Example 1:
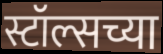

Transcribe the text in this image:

स्टॉल्सच्या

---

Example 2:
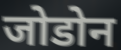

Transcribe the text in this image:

जोडोन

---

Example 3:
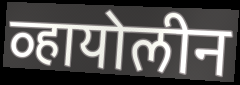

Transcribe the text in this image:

व्हायोलीन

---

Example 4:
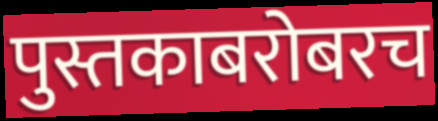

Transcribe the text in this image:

पुस्तकाबरोबरच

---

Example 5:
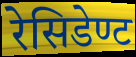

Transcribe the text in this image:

रेसिडेण्ट